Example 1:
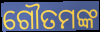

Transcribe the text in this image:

ଗୌତମଙ୍କ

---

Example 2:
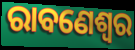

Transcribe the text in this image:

ରାବଣେଶ୍ୱର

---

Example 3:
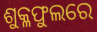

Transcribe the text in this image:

ଶୁକ୍ଳଫୁଲରେ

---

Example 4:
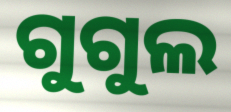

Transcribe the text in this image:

ଗୁଗୁଲ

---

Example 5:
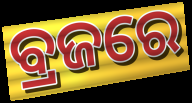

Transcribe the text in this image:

ବ୍ରଜରେ